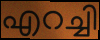
എറച്ചി